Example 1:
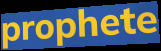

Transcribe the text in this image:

prophete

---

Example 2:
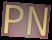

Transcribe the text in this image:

PN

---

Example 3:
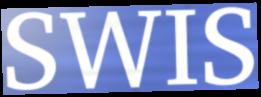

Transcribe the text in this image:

SWIS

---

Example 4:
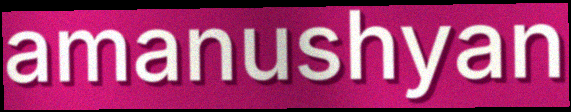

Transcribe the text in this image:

amanushyan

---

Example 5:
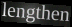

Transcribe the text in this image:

lengthen